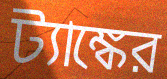
ট্যাঙ্কের